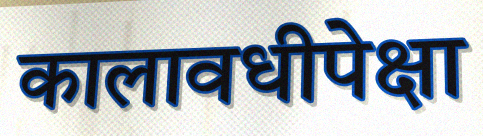
कालावधीपेक्षा